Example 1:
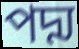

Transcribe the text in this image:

পদ্ম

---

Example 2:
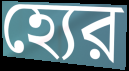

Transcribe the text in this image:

হ্যের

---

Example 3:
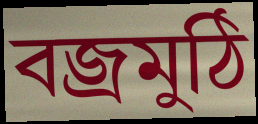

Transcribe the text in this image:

বজ্রমুঠি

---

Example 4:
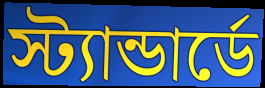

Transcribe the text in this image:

স্ট্যান্ডার্ডে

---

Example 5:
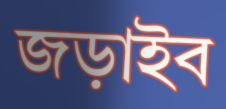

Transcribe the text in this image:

জড়াইব